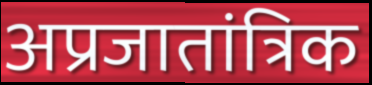
अप्रजातांत्रिक